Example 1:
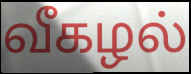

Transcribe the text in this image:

வீகழல்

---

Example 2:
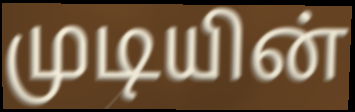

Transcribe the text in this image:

முடியின்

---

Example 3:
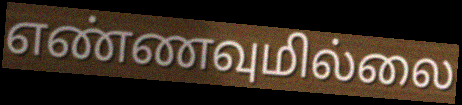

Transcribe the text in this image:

எண்ணவுமில்லை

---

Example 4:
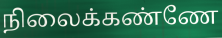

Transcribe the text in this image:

நிலைக்கண்ணே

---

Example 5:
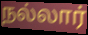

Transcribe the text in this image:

நல்லார்